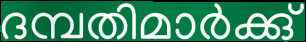
ദമ്പതിമാർക്കു്